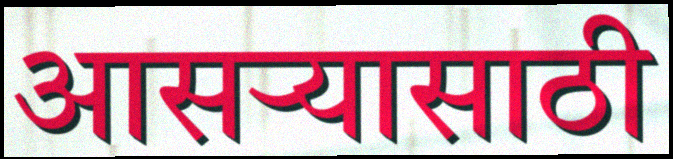
आसऱ्यासाठी